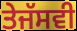
ਤੇਜੱਸਵੀ